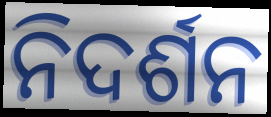
ନିଦର୍ଶନ